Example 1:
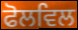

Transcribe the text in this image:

ਫੋਲਵਿਲ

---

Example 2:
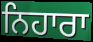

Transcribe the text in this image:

ਨਿਹਾਰਾ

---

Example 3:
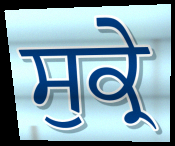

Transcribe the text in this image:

ਸੁਕ੍ਰੇ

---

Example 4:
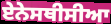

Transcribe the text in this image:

ਏਨੇਸਥੀਸੀਆ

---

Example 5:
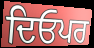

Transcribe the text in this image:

ਦਿਓਪਰ